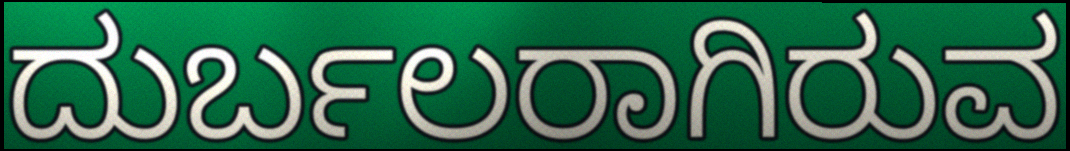
ದುರ್ಬಲರಾಗಿರುವ